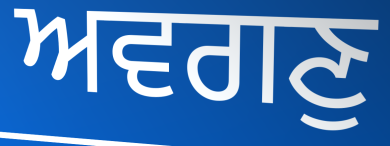
ਅਵਗਣੁ